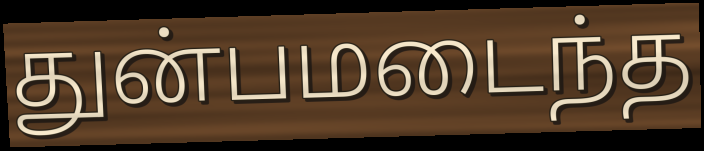
துன்பமடைந்த